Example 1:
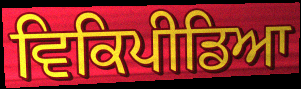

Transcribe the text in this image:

ਵਿਕਿਪੀਡਿਆ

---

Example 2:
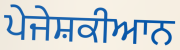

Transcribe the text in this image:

ਪੇਜੇਸ਼ਕੀਆਨ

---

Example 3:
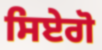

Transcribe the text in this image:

ਸਿਏਗੋ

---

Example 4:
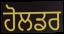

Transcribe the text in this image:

ਹੋਲਡਰ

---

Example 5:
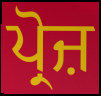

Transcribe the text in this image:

ਪ੍ਰੋਜ਼